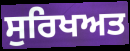
ਸੁਰਿਖਅਤ